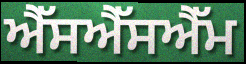
ਐੱਸਐੱਸਐੱਮ